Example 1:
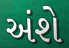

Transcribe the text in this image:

અંશે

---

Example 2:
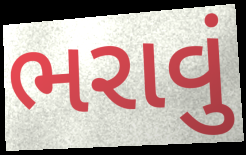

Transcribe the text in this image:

ભરાવું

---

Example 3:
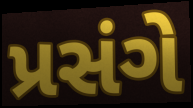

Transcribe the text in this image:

પ્રસંગે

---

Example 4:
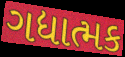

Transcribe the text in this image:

ગદ્યાત્મક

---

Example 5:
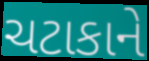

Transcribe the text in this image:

ચટાકાને